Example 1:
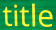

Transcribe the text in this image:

title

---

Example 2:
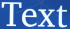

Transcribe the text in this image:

Text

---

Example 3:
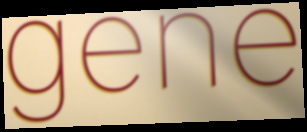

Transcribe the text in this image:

gene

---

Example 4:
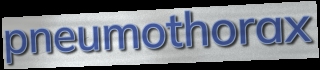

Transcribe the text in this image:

pneumothorax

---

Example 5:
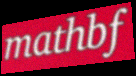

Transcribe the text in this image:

mathbf